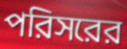
পরিসরের